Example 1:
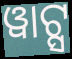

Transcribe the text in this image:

ୱାଟ୍ସ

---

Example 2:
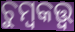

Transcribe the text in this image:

ଚୁମ୍ବକତ୍ତ୍ୱ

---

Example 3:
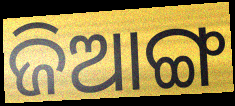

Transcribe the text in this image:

ଜିଆଙ୍ଗ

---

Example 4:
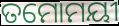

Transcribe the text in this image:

ତମୋମୟୀ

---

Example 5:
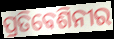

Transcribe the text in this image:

ପ୍ରତିବେଶିନୀର